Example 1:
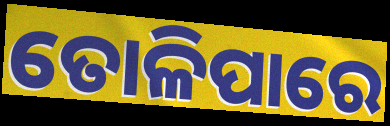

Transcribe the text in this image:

ତୋଳିପାରେ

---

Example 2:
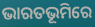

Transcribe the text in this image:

ଭାରତଭୂମିରେ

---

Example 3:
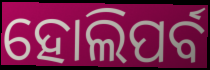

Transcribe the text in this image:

ହୋଲିପର୍ବ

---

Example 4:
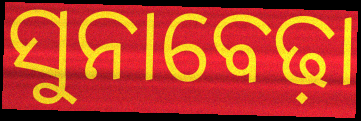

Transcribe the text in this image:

ସୁନାବେଢ଼ା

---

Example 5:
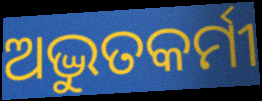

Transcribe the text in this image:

ଅଦ୍ଭୁତକର୍ମୀ